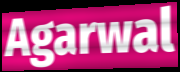
Agarwal